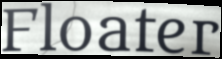
Floater